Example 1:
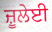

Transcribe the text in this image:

ਜ਼ੂਲੇਈ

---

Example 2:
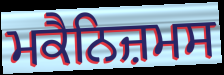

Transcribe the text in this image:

ਮਕੈਨਿਜ਼ਮਸ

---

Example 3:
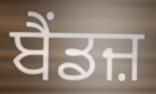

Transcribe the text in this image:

ਬੈਂਡਜ਼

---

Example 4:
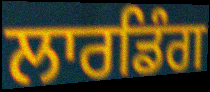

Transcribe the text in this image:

ਲਾਰਡਿੰਗ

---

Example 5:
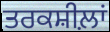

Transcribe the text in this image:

ਤਰਕਸ਼ੀਲ਼ਾਂ